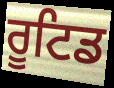
ਰੂਟਿਡ